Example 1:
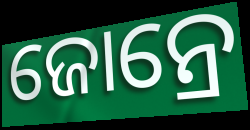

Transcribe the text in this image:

ଜୋନ୍ରେ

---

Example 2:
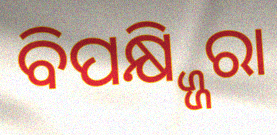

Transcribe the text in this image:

ବିପକ୍ଷ୍ଜ୍ଜିରା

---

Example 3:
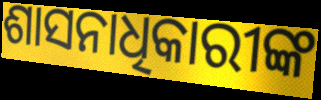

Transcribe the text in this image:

ଶାସନାଧିକାରୀଙ୍କ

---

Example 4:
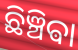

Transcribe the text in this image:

ଛିଞ୍ଚିଵା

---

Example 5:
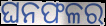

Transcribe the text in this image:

ଘନଫଳର